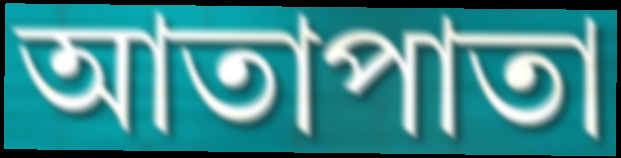
আতাপাতা